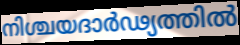
നിശ്ചയദാർഢ്യത്തിൽ